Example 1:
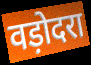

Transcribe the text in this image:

वड़ोदरा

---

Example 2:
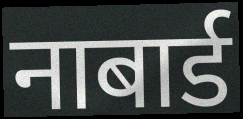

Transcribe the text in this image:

नाबार्ड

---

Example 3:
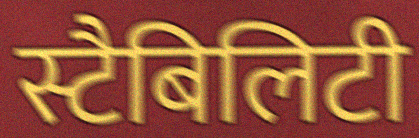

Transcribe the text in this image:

स्टैबिलिटी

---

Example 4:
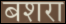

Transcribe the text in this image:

बशरा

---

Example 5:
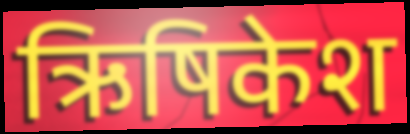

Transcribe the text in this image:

ऋिषिकेश